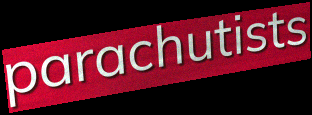
parachutists